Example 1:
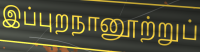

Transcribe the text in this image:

இப்புறநானூற்றுப்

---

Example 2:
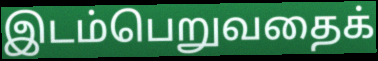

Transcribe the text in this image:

இடம்பெறுவதைக்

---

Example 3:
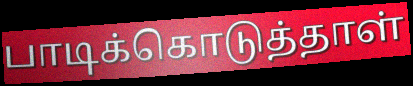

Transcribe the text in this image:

பாடிக்கொடுத்தாள்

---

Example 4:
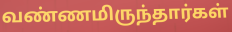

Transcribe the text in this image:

வண்ணமிருந்தார்கள்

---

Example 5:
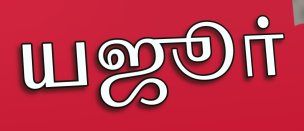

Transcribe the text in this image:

யஜூர்